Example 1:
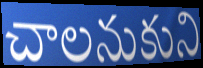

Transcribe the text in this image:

చాలనుకుని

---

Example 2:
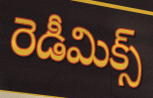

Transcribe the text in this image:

రెడీమిక్స్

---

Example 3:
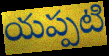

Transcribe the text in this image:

యప్పటి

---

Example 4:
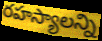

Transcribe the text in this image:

రహస్యాలన్ని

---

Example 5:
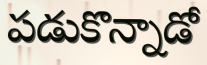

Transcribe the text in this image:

పడుకొన్నాడో